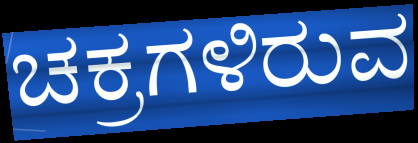
ಚಕ್ರಗಳಿರುವ